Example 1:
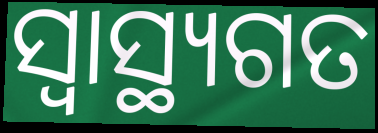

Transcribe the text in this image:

ସ୍ବାସ୍ଥ୍ୟଗତ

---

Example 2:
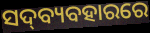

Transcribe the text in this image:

ସଦ୍‍ବ୍ୟବହାରରେ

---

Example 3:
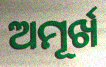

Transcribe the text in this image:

ଅମୂର୍ଖ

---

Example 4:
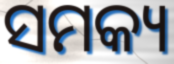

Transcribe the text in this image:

ସମକ୍ୟ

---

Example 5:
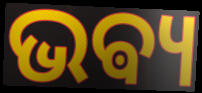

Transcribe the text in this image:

ଭଵ୍ୟ